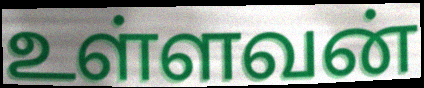
உள்ளவன்